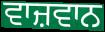
ਵਾਜ਼ਵਾਨ